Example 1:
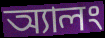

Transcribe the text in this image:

অ্যালং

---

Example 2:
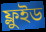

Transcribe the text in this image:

ফ্লুইড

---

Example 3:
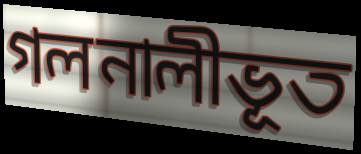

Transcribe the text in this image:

গলনালীভূত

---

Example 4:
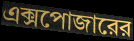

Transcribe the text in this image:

এক্সপোজারের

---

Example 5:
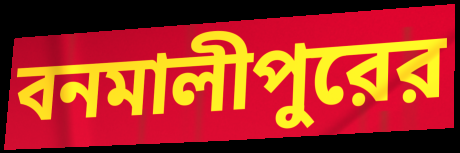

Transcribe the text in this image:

বনমালীপুরের